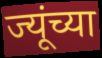
ज्यूंच्या